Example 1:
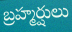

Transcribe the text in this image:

బ్రహ్మర్షులు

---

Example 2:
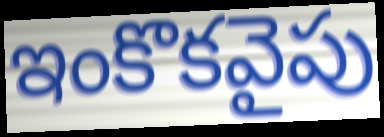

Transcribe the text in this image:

ఇంకొకవైపు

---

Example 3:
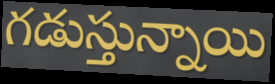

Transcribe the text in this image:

గడుస్తున్నాయి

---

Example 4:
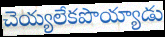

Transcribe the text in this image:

చెయ్యలేకపొయ్యాడు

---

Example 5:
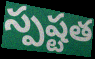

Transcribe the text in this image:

స్పష్టత